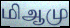
மிஆமு